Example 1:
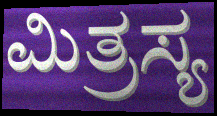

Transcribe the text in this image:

ಮಿತ್ರಸ್ಯ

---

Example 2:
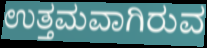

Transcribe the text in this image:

ಉತ್ತಮವಾಗಿರುವ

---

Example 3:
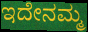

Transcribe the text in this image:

ಇದೇನಮ್ಮ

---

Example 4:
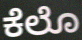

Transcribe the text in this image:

ಕೆಲೊ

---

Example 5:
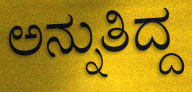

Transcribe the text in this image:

ಅನ್ನುತಿದ್ದ